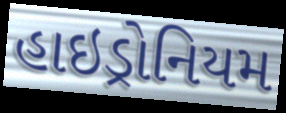
હાઇડ્રોનિયમ